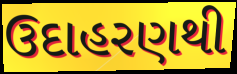
ઉદાહરણથી